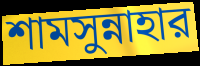
শামসুন্নাহার